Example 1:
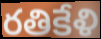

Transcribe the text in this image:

రతికేళి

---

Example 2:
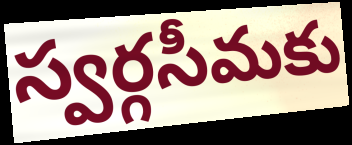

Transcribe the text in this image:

స్వర్గసీమకు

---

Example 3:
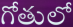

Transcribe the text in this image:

గోతులో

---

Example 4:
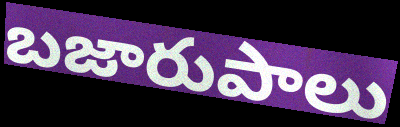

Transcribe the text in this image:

బజారుపాలు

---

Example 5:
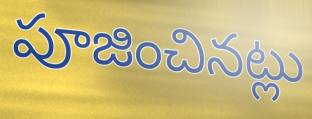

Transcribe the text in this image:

పూజించినట్లు